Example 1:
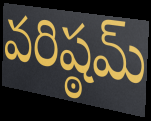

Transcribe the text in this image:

వరిష్ఠమ్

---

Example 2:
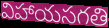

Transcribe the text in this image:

విహాయసగతి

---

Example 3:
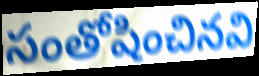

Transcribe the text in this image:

సంతోషించినవి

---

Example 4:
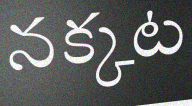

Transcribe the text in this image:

నక్కట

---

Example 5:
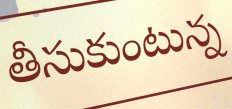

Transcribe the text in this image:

తీసుకుంటున్న